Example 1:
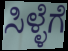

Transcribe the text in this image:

ಸಿಳ್ಳೆಗೆ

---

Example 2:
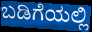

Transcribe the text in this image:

ಬಡಿಗೆಯಲ್ಲಿ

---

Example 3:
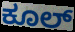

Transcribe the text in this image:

ಕೂಲ್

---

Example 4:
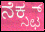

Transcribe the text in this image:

ನೆಕ್ಸ್ಟ್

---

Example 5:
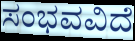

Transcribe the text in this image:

ಸಂಭವವಿದೆ